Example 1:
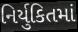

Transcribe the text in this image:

નિર્યુકિતમાં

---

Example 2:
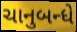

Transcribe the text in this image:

ચાનુબન્ધે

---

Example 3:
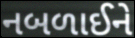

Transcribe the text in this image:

નબળાઈને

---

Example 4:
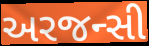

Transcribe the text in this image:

અરજન્સી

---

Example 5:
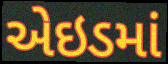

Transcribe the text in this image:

એઇડમાં